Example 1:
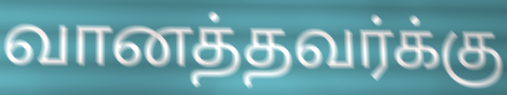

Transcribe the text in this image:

வானத்தவர்க்கு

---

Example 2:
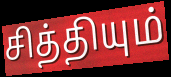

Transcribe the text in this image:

சித்தியும்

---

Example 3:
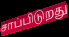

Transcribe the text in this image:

சாப்பிடுறது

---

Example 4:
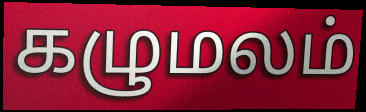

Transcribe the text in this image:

கழுமலம்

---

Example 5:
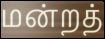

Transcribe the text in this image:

மன்றத்